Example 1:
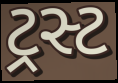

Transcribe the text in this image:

ટ્રસ્ટ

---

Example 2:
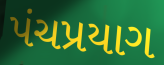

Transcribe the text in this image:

પંચપ્રયાગ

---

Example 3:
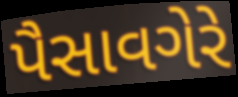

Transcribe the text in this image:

પૈસાવગેરે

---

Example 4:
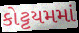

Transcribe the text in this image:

કોટ્ટયમમાં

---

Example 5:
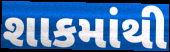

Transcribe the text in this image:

શાકમાંથી